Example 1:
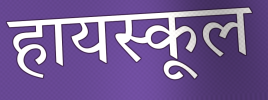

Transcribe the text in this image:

हायस्कूल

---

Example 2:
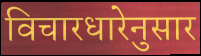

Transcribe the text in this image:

विचारधारेनुसार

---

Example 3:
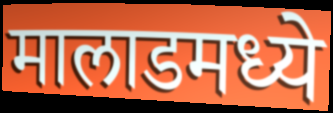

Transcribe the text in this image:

मालाडमध्ये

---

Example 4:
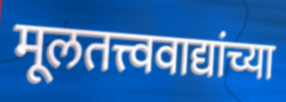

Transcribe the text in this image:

मूलतत्त्ववाद्यांच्या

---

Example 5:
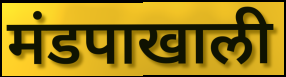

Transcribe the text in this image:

मंडपाखाली